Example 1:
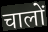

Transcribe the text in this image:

चालों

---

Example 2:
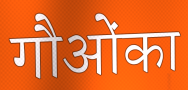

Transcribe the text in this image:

गौओंका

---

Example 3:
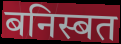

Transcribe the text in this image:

बनिस्बत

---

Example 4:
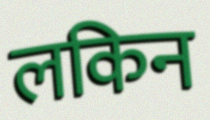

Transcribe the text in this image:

लकिन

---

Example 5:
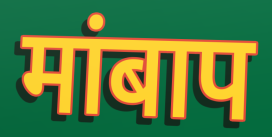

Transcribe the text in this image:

मांबाप